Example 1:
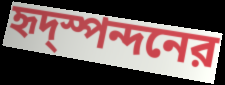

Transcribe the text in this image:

হৃদ্স্পন্দনের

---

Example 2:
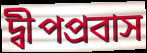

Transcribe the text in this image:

দ্বীপপ্রবাস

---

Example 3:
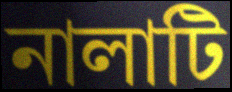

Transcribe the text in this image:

নালাটি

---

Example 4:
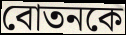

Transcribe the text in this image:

বোতনকে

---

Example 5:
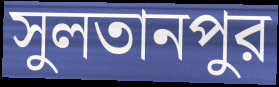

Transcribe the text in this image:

সুলতানপুর